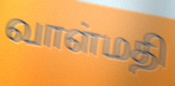
வாள்மதி